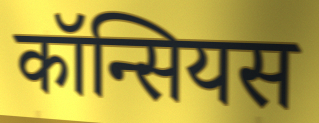
कॉन्सियस